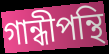
গান্ধীপন্থি